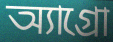
অ্যাগ্রো